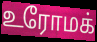
உரோமக்